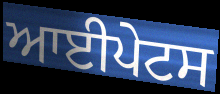
ਆਈਪੇਟਸ